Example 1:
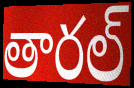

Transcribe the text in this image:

తారల్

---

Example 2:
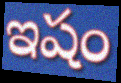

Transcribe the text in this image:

ఇషం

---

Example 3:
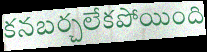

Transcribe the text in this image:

కనబర్చలేకపోయింది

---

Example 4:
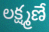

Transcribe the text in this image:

లక్ష్మణే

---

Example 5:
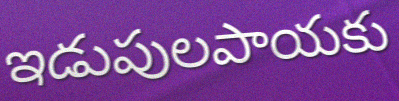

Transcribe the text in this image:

ఇడుపులపాయకు